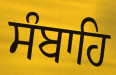
ਸੰਬਾਹਿ